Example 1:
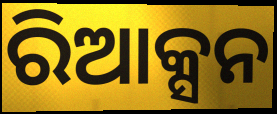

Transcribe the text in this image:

ରିଆକ୍ସନ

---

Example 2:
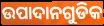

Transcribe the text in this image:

ଉପାଦାନଗୁଡିକ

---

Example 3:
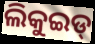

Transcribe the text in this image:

ଲିକୁଇଡ୍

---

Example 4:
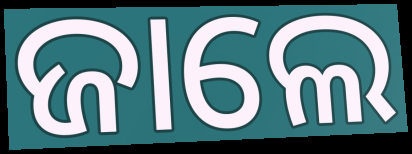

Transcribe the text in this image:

ଜାଲେ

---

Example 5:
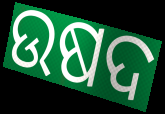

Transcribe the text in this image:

ଉଷଦ